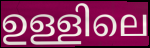
ഉള്ളിലെ